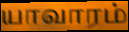
யாவாரம்